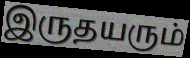
இருதயரும்